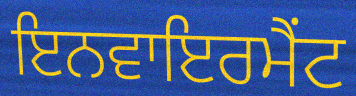
ਇਨਵਾਇਰਮੈਂਟ